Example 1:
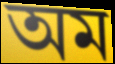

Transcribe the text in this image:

অম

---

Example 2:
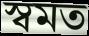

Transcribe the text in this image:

স্বমত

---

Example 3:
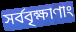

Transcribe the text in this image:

সর্ববৃক্ষাণাং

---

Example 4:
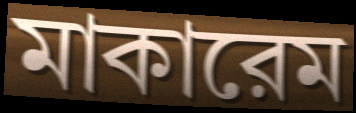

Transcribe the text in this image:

মাকারেম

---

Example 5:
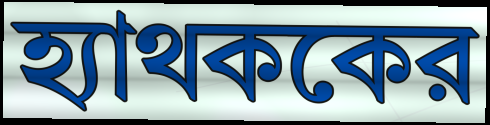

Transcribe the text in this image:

হ্যাথককের